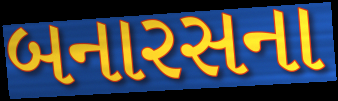
બનારસના